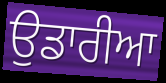
ਉਡਾਰੀਆ